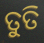
ତୁତି